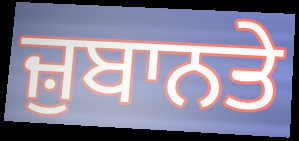
ਜ਼ੁਬਾਨਤੇ